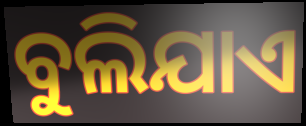
ବୁଲିଯାଏ